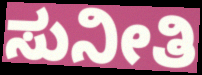
ಸುನೀತಿ